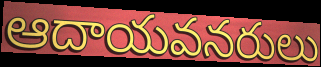
ఆదాయవనరులు